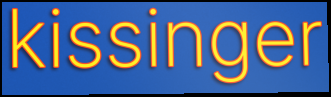
kissinger